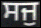
ਸਜੁ